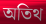
অতিথ